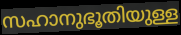
സഹാനുഭൂതിയുള്ള